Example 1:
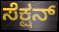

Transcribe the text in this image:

ಸೆಕ್ಷನ್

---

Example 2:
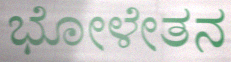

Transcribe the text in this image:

ಭೋಳೇತನ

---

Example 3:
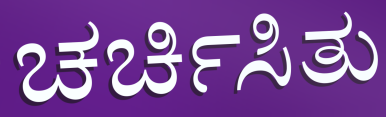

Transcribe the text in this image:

ಚರ್ಚಿಸಿತು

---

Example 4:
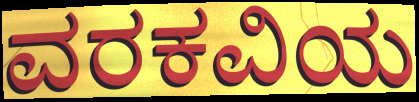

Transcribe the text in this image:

ವರಕವಿಯ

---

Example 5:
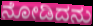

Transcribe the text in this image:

ನೋಡಿದನು